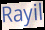
Rayil